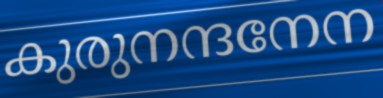
കുരുനന്ദനേന